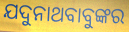
ଯଦୁନାଥବାବୁଙ୍କର